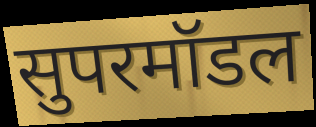
सुपरमॉडल